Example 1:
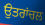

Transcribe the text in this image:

ਉਤਰਾਂਚਲ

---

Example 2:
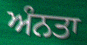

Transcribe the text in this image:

ਅੰਨਤਾ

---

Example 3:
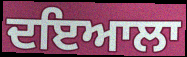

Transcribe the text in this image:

ਦਇਆਲਾ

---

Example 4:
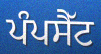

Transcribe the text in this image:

ਪੰਪਸੈੱਟ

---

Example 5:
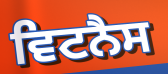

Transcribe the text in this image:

ਵਿਟਨੈਸ